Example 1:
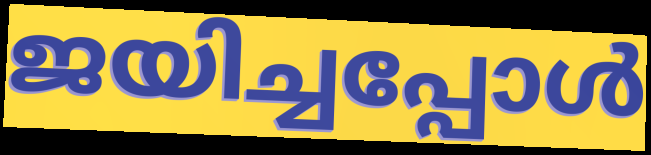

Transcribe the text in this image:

ജയിച്ചപ്പോൾ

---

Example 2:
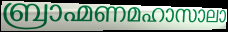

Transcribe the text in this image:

ബ്രാഹ്മണമഹാസാലാ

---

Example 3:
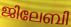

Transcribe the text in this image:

ജിലേബി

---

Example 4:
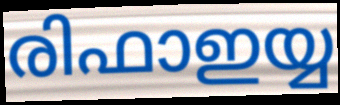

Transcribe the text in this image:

രിഫാഇയ്യ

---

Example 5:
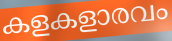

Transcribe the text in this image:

കളകളാരവം